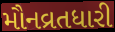
મૌનવ્રતધારી